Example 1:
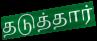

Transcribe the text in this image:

தடுத்தார்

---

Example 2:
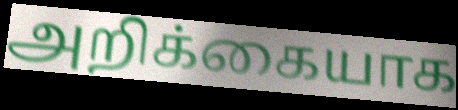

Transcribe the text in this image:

அறிக்கையாக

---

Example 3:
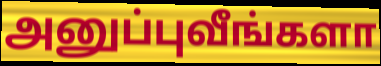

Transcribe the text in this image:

அனுப்புவீங்களா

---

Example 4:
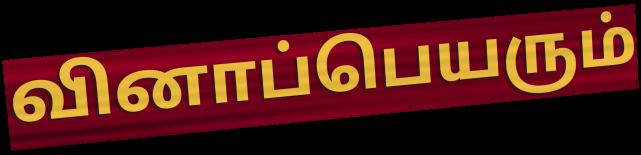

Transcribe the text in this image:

வினாப்பெயரும்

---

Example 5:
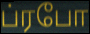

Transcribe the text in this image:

ப்ரபோ